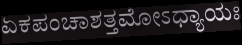
ಏಕಪಂಚಾಶತ್ತಮೋಽಧ್ಯಾಯಃ